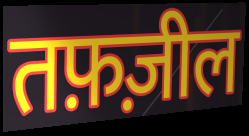
तफ़ज़ील